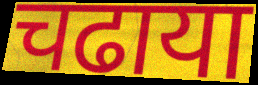
चढाया